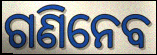
ଗଣିନେବ